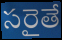
సరైతే